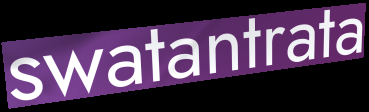
swatantrata